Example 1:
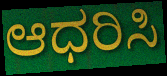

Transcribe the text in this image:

ಆಧರಿಸಿ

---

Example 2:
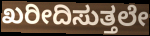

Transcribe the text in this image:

ಖರೀದಿಸುತ್ತಲೇ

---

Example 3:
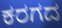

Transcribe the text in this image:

ಕರಗದ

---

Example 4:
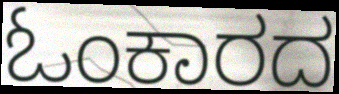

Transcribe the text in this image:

ಓಂಕಾರದ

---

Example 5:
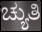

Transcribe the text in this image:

ಚ್ಯುತಿ